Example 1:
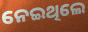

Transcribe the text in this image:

ନେଇଥିଲେ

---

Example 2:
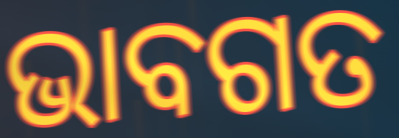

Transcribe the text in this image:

ଭାବଗତ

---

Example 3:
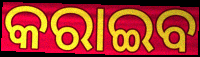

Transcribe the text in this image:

କରାଇବ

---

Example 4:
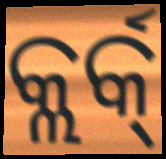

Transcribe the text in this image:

କ୍ଲର୍କ୍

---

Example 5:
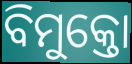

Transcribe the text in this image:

ବିମୁକ୍ତୋ